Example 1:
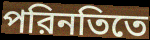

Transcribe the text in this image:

পরিনতিতে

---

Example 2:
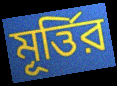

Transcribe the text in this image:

মূর্ত্তির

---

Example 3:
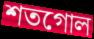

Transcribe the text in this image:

শতগোল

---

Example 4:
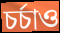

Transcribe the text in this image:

চর্চাও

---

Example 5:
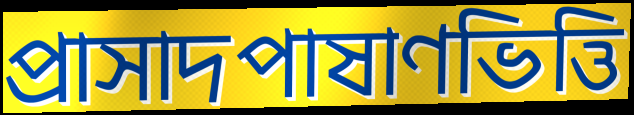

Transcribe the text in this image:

প্রাসাদপাষাণভিত্তি